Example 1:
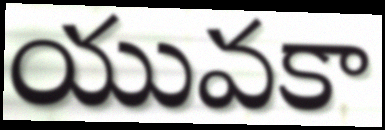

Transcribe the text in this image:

యువకా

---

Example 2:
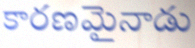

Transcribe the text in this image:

కారణమైనాడు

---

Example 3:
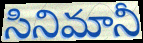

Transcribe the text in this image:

సినిమానీ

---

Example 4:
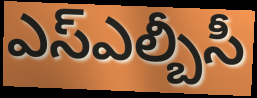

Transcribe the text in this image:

ఎస్ఎల్బీసీ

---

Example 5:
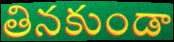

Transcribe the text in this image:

తినకుండా